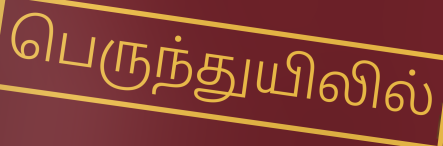
பெருந்துயிலில்